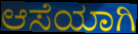
ಆಸೆಯಾಗಿ